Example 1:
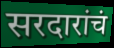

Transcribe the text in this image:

सरदारांचं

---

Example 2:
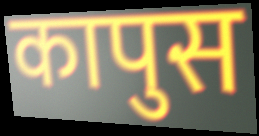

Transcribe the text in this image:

कापुस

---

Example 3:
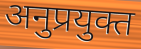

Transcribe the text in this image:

अनुप्रयुक्त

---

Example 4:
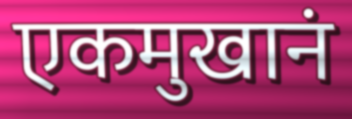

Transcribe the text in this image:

एकमुखानं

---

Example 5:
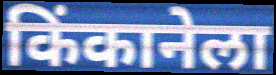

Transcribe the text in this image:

किंकानेला